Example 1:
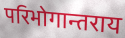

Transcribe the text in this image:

परिभोगान्तराय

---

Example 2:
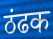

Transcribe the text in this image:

ठंढक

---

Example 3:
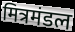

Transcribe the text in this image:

मित्रमंडल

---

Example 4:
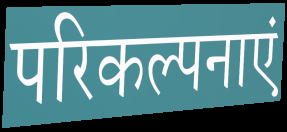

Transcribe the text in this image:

परिकल्पनाएं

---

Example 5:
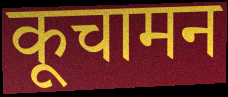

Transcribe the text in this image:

कूचामन